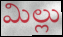
మిల్లు